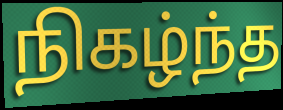
நிகழ்ந்த